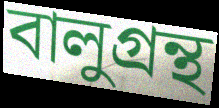
বালুগ্রন্থ